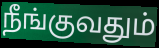
நீங்குவதும்